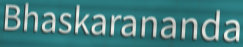
Bhaskarananda